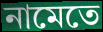
নামেতে